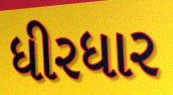
ધીરધાર